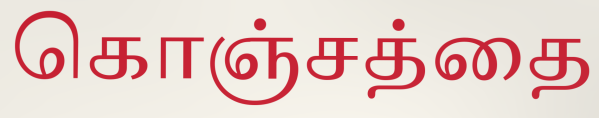
கொஞ்சத்தை